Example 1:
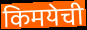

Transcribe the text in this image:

किमयेची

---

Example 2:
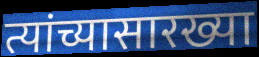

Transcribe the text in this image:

त्यांच्यासारख्या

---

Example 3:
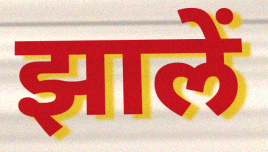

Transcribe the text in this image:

झालें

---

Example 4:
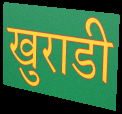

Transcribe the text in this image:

खुराडी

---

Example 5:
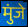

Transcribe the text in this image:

मुंजे